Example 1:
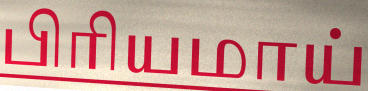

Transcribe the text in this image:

பிரியமாய்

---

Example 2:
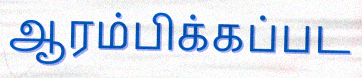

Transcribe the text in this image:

ஆரம்பிக்கப்பட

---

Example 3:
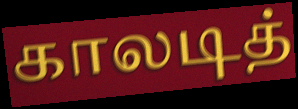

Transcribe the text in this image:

காலடித்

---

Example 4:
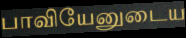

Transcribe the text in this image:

பாவியேனுடைய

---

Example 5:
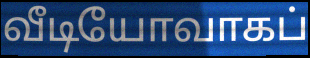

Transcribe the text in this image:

வீடியோவாகப்